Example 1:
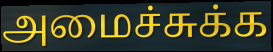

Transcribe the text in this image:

அமைச்சுக்க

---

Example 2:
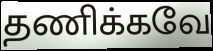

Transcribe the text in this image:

தணிக்கவே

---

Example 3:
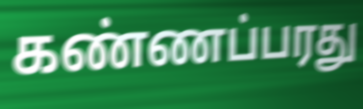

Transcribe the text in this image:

கண்ணப்பரது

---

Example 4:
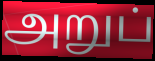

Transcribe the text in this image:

அறுப்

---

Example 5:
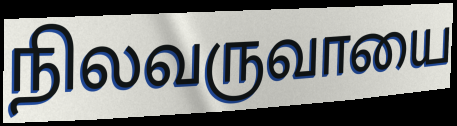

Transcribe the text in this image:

நிலவருவாயை